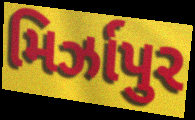
મિર્ઝાપુર